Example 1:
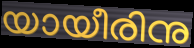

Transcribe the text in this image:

യായീരിനു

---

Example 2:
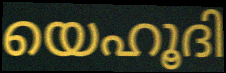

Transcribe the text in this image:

യെഹൂദി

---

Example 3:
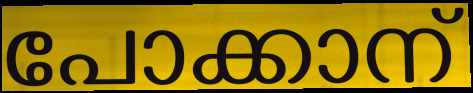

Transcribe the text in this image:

പോക്കാന്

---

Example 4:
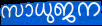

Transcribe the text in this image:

സാധുജന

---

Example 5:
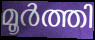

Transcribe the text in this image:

മൂർത്തി